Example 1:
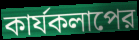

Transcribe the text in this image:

কার্যকলাপের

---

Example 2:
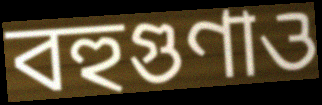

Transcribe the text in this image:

বহুগুণাও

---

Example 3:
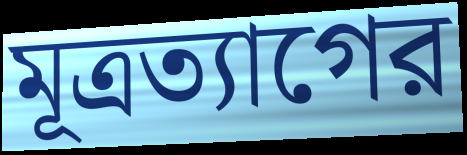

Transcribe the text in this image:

মূত্রত্যাগের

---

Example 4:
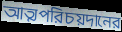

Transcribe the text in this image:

আত্মপরিচয়দানের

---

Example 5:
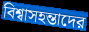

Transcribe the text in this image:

বিশ্বাসহন্তাদের